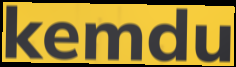
kemdu